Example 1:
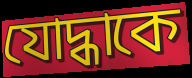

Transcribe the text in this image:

যোদ্ধাকে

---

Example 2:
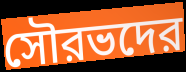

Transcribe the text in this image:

সৌরভদের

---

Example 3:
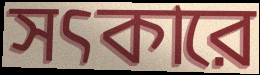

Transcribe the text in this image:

সৎকারে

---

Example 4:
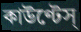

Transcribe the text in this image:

কাউণ্টেস্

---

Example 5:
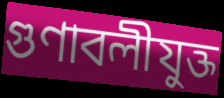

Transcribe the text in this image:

গুণাবলীযুক্ত